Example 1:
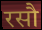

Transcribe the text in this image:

रसौ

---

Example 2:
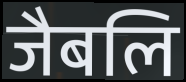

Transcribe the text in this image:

जैबलि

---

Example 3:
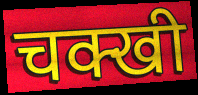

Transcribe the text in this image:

चक्खी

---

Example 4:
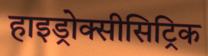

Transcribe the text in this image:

हाइड्रोक्सीसिट्रिक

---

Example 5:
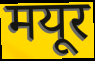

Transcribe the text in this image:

मयूर